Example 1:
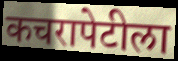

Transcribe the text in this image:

कचरापेटीला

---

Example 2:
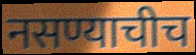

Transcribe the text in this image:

नसण्याचीच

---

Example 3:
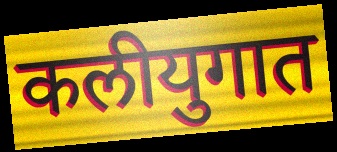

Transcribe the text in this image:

कलीयुगात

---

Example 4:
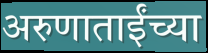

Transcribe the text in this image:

अरुणाताईंच्या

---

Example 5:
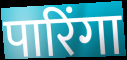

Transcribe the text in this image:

पारिंगा